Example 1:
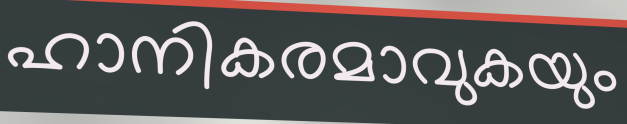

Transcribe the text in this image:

ഹാനികരമാവുകയും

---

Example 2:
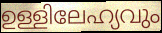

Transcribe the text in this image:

ഉള്ളിലേഹ്യവും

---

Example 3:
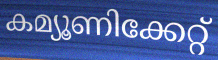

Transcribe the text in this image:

കമ്യൂണിക്കേറ്റ്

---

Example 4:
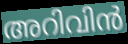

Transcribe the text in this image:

അറിവിൻ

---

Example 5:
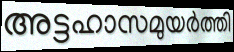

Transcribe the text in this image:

അട്ടഹാസമുയർത്തി